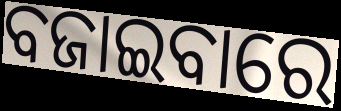
ବଜାଇବାରେ